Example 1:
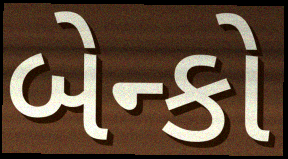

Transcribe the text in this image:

બેન્કો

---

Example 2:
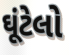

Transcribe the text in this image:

ઘૂંટેલો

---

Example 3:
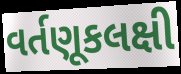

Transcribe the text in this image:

વર્તણૂકલક્ષી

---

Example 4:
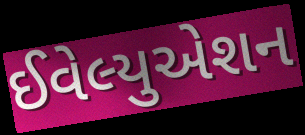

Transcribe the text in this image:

ઈવેલ્યુએશન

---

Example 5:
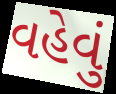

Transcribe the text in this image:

વહેવું